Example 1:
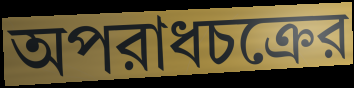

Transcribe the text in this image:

অপরাধচক্রের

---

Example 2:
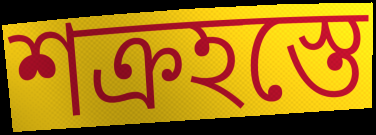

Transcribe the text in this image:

শক্রহস্তে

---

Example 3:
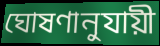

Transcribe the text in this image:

ঘোষণানুযায়ী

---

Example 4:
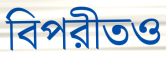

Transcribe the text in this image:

বিপরীতও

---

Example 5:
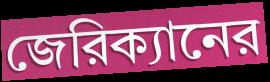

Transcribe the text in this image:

জেরিক্যানের